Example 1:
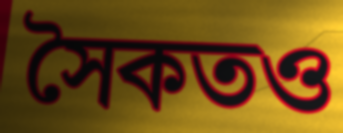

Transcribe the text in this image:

সৈকতও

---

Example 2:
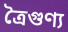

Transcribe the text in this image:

ত্রৈগুণ্য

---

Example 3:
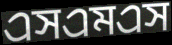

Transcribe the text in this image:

এসএমএস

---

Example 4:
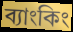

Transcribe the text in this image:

ব্যাংকিং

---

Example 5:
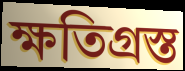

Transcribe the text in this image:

ক্ষতিগ্রস্ত